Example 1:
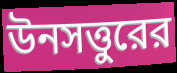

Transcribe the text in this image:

উনসত্তুরের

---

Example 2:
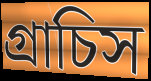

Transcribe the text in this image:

গ্রাচিস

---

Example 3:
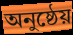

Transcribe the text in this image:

অনুষ্ঠেয়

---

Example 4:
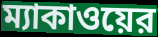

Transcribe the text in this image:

ম্যাকাওয়ের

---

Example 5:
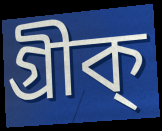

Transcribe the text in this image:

গ্রীক্